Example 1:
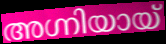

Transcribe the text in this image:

അഗ്നിയായ്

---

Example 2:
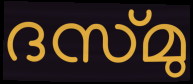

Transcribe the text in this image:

ദസ്മു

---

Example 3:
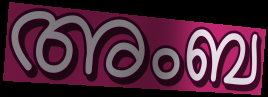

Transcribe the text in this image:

അംബ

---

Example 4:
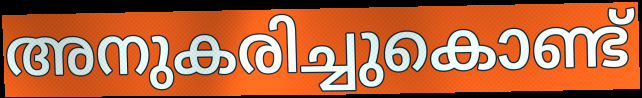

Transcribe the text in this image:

അനുകരിച്ചുകൊണ്ട്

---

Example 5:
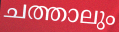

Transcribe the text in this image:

ചത്താലും